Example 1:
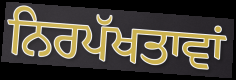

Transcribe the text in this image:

ਨਿਰਪੱਖਤਾਵਾਂ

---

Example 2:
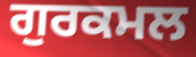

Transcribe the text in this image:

ਗੁਰਕਮਲ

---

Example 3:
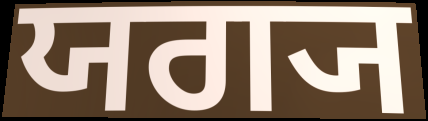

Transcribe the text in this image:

ਯਗ੍ਯ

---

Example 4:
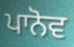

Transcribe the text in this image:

ਪਾਨੋਵ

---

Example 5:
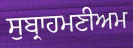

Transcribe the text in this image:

ਸੁਬ੍ਰਾਹਮਣੀਅਮ